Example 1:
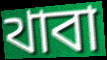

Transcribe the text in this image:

থাবা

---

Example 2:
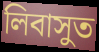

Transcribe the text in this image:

লিবাসুত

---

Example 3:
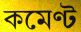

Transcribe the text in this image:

কমেণ্ট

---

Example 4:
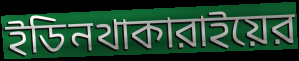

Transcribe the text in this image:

ইডিনথাকারাইয়ের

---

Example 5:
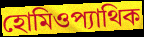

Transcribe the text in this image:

হোমিওপ্যাথিক